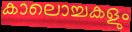
കാലൊച്ചകളും